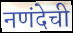
नणंदेची